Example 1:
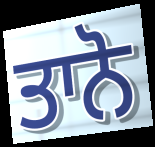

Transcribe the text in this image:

ਤਾਨੋ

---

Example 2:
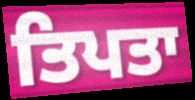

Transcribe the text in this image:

ਤਿਪਤਾ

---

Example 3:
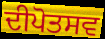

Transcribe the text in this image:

ਦੀਪੋਤਸਵ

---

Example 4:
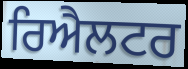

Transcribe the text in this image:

ਰਿਐਲਟਰ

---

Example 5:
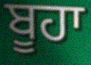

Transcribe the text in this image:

ਬੂਹਾ